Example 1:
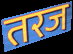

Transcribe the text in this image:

तरज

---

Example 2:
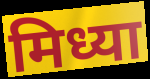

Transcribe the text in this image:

मिध्या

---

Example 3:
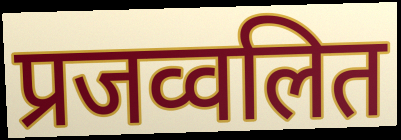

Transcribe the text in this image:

प्रजव्वलित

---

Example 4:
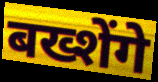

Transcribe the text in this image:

बख्शेंगे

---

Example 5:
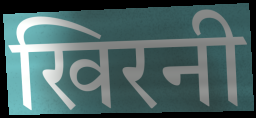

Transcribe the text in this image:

खिरनी